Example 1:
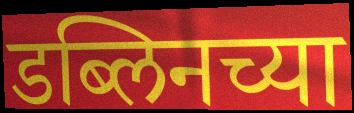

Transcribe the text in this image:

डब्लिनच्या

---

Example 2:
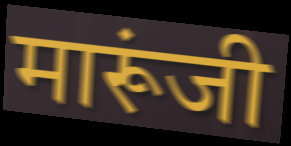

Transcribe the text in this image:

मारूंजी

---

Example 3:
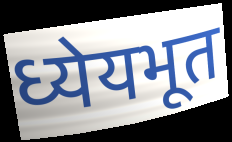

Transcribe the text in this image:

ध्येयभूत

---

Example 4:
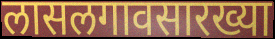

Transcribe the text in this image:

लासलगावसारख्या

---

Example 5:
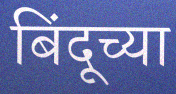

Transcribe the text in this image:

बिंदूच्या